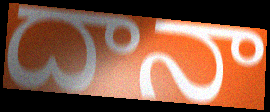
దానా